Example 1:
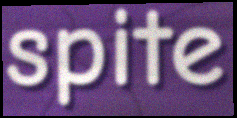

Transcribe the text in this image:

spite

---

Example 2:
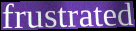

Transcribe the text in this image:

frustrated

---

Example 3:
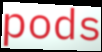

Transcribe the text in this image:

pods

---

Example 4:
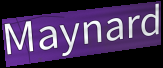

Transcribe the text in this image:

Maynard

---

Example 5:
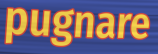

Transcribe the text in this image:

pugnare